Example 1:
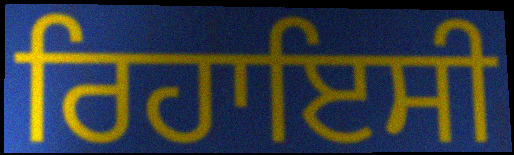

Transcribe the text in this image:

ਰਿਹਾਇਸੀ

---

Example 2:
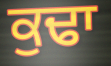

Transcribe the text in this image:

ਕੁਢਾ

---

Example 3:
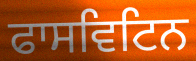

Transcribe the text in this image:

ਫਾਸਵਿਟਿਨ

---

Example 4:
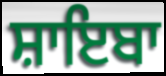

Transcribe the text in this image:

ਸ਼ਾਇਬਾ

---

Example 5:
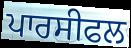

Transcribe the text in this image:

ਪਾਰਸੀਫਲ